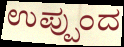
ಉಪ್ಪುಂದ